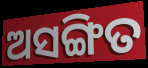
ଅସଙ୍ଗିତ